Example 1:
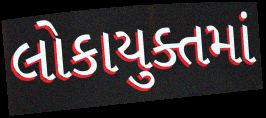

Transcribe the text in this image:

લોકાયુક્તમાં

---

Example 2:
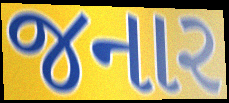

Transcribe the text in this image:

જનાર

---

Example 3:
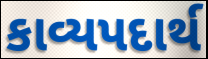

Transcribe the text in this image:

કાવ્યપદાર્થ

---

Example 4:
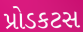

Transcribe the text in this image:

પ્રોડકટસ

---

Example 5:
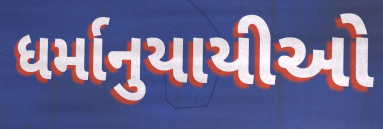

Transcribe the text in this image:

ધર્માનુયાયીઓ